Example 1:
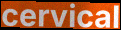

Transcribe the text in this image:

cervical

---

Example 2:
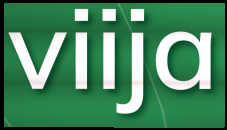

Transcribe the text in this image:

viija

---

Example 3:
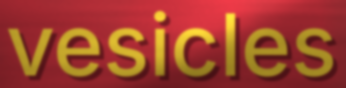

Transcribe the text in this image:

vesicles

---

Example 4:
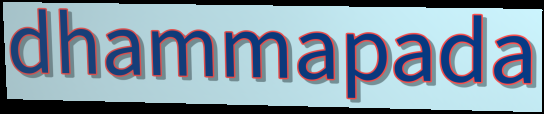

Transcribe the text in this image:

dhammapada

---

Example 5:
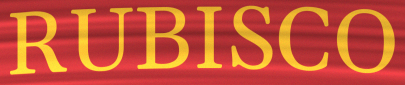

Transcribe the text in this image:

RUBISCO